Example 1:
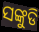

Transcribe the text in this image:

ସଙ୍କୁଡି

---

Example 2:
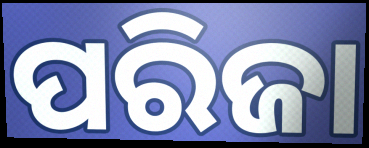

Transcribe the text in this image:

ପରିଜା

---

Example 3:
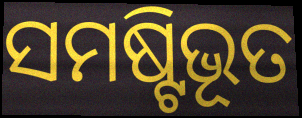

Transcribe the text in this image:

ସମଷ୍ଟିଭୂତ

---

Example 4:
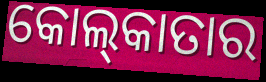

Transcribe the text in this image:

କୋଲ୍‌କାତାର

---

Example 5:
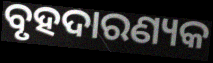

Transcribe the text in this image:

ବୃହଦାରଣ୍ୟକ